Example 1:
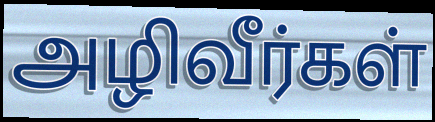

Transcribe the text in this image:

அழிவீர்கள்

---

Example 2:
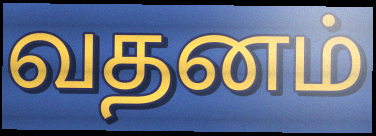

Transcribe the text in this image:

வதனம்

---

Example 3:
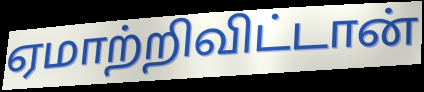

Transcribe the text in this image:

ஏமாற்றிவிட்டான்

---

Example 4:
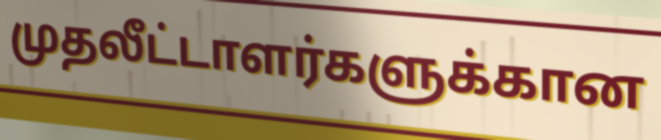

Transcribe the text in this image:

முதலீட்டாளர்களுக்கான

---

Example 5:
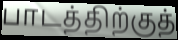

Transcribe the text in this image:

பாடத்திற்குத்